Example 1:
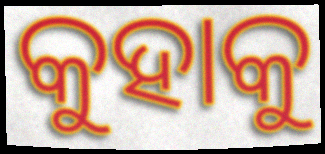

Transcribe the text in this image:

କୁହାକୁ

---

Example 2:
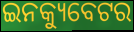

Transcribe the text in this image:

ଇନକ୍ୟୁବେଟର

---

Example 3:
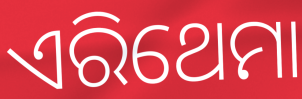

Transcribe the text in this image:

ଏରିଥେମା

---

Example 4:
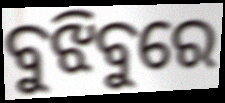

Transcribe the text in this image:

ବୁଝିବୁରେ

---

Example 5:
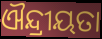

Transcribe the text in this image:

ଐନ୍ଦ୍ରୀୟତା